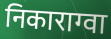
निकाराग्वा